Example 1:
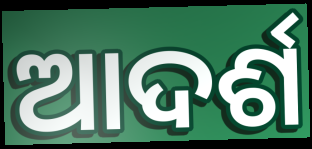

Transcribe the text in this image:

ଆଦର୍ଶ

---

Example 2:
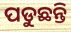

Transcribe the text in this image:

ପଡୁଛନ୍ତି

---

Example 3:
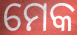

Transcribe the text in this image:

ମେକ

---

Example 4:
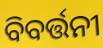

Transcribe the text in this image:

ବିବର୍ତ୍ତନୀ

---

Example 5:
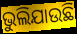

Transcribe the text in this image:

ଭୁଲିଯାଉଛି